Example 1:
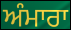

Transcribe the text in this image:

ਅੰਮਾਰਾ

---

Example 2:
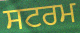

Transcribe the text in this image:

ਸਟਰਮ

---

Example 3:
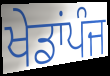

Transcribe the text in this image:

ਖੇਡਾਂਪੰਜ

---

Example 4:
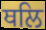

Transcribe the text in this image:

ਥਲਿ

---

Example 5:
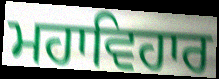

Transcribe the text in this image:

ਮਹਾਵਿਹਾਰ